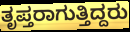
ತೃಪ್ತರಾಗುತ್ತಿದ್ದರು